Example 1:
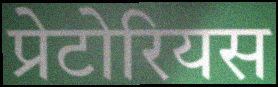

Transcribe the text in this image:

प्रेटोरियस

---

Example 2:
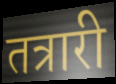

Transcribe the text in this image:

तत्रारी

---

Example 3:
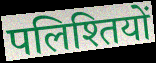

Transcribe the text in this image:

पलिश्‍तियों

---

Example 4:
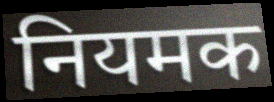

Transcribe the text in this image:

नियमक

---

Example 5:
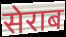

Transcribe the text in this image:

सेराब